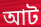
আট